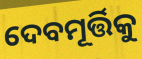
ଦେବମୂର୍ତ୍ତିକୁ